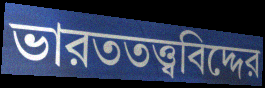
ভারততত্ত্ববিদ্দের